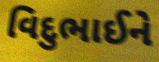
વિદુભાઈને